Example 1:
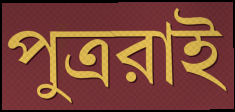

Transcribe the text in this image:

পুত্ররাই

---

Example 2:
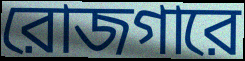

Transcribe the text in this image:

রোজগারে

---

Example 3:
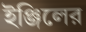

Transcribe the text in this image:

ইঞ্জিলের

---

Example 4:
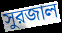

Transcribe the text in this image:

সুরজাল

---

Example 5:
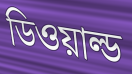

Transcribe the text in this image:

ডিওয়াল্ড